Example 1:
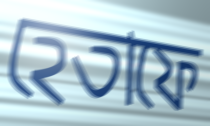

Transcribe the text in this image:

হেতাফে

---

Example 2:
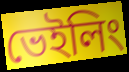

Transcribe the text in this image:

ভেইলিং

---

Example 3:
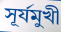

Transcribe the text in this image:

সূর্যমুখী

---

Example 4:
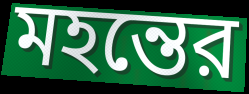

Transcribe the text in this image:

মহন্তের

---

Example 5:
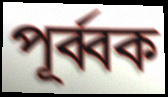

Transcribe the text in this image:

পূর্ব্বক